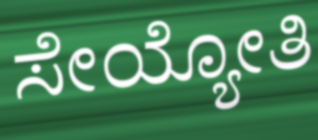
ಸೇಯ್ಯೋತಿ